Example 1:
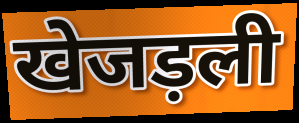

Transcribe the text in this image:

खेजड़ली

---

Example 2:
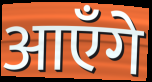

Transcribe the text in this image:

आएँगे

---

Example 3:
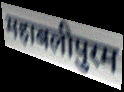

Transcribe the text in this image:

महाबलीपुरम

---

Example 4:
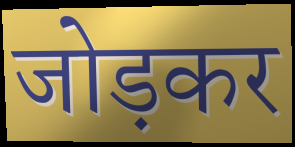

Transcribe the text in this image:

जोड़कर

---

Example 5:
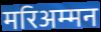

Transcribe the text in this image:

मरिअम्मन